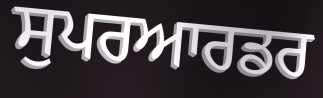
ਸੁਪਰਆਰਡਰ